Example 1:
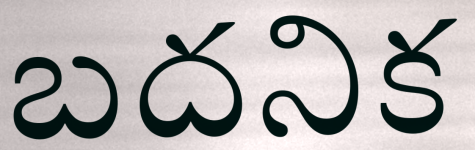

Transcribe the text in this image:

బదనిక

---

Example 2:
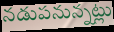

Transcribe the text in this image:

నడుపనున్నట్లు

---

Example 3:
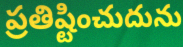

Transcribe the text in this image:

ప్రతిష్టించుదును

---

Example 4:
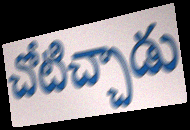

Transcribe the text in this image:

చోటిచ్చాడు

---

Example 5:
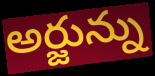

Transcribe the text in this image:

అర్జున్ను